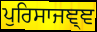
ਪੁਰਿਸਾਜਞ੍ਞ